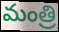
మంత్రి